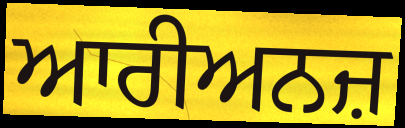
ਆਰੀਅਨਜ਼